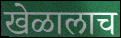
खेळालाच